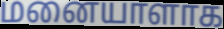
மனையாளாக